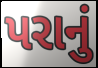
પરાનું